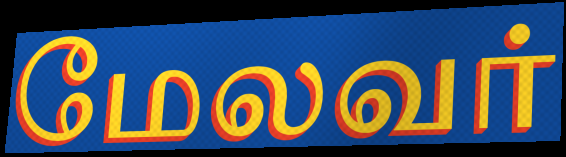
மேலவர்